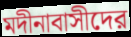
মদীনাবাসীদের